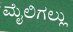
ಮೈಲಿಗಲ್ಲು